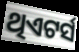
ଥିଏଟର୍ସ